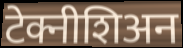
टेक्नीशिअन